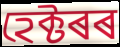
হেক্টৰৰ